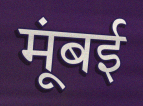
मूंबई